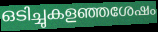
ഒടിച്ചുകളഞ്ഞശേഷം